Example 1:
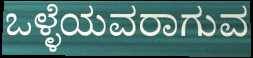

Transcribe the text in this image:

ಒಳ್ಳೆಯವರಾಗುವ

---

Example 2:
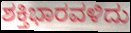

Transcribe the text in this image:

ಶಕ್ತಿಭಾರವಳಿದು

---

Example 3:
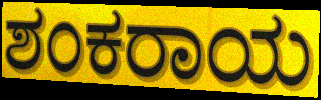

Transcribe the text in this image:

ಶಂಕರಾಯ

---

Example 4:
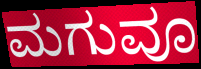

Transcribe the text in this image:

ಮಗುವೂ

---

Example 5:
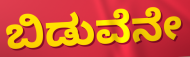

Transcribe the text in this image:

ಬಿಡುವೆನೇ